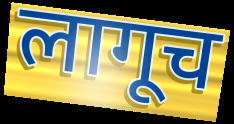
लागूच